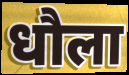
धौला